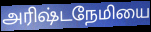
அரிஷ்டநேமியை